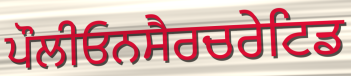
ਪੌਲੀਓਨਸੈਰਚਰੇਟਿਡ